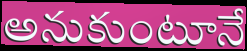
అనుకుంటూనే